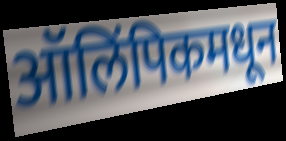
ऑलिंपिकमधून